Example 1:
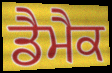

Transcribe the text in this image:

ਡੈਮੈਕ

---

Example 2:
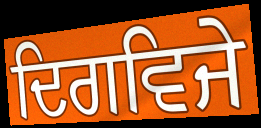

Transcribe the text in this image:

ਦਿਗਵਿਜੇ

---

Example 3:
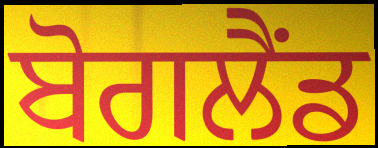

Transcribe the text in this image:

ਬੋਗਲੈਂਡ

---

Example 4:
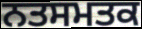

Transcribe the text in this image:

ਨਤਸਮਤਕ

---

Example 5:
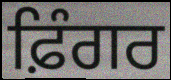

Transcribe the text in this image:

ਫ਼ਿੰਗਰ